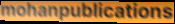
mohanpublications